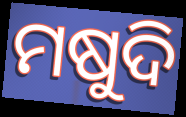
ମଷୁଦି